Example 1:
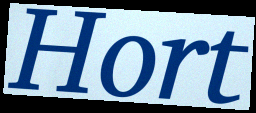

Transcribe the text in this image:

Hort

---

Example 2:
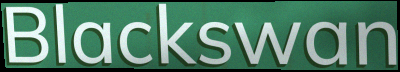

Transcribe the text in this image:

Blackswan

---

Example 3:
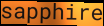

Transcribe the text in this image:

sapphire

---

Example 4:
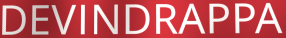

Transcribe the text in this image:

DEVINDRAPPA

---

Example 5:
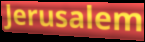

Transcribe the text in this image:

Jerusalem